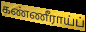
கண்ணீராய்ப்